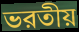
ভরতীয়